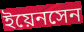
ইয়েনসেন